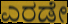
ಎರಡೇ